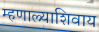
म्हणाल्याशिवाय